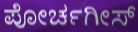
ಪೋರ್ಚಗೀಸ್